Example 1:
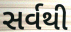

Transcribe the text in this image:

સર્વથી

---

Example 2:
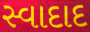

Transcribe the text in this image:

સ્વાદાદ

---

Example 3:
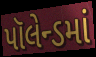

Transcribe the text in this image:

પૉલેન્ડમાં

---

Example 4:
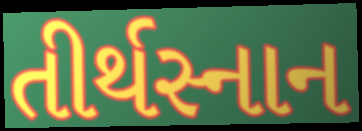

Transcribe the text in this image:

તીર્થસ્નાન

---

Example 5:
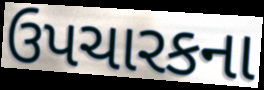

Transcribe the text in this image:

ઉપચારકના